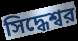
সিদ্ধেশ্বর